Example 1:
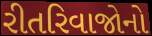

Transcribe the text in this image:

રીતરિવાજોનો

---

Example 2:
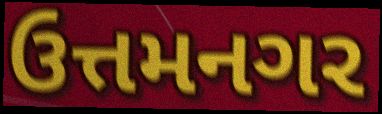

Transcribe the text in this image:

ઉત્તમનગર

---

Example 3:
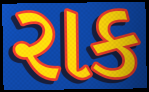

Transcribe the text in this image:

રાક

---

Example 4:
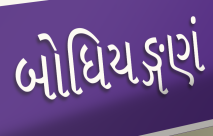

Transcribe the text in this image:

બોધિયઙ્ગણં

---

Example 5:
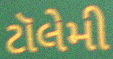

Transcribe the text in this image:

ટૉલેમી